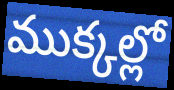
ముక్కల్లో